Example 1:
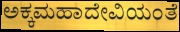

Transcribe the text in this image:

ಅಕ್ಕಮಹಾದೇವಿಯಂತೆ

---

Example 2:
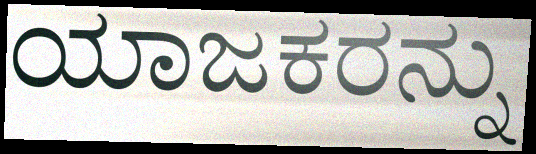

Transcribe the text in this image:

ಯಾಜಕರನ್ನು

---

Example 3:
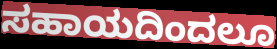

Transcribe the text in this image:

ಸಹಾಯದಿಂದಲೂ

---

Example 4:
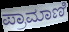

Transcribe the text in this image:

ಪ್ರಾಮಾಣಿ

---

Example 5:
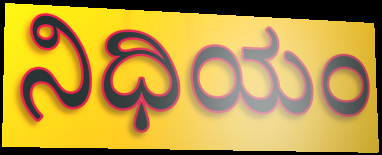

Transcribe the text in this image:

ನಿಧಿಯಂ